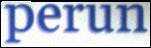
perun